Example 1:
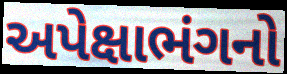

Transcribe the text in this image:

અપેક્ષાભંગનો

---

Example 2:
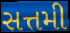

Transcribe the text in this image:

સત્તમી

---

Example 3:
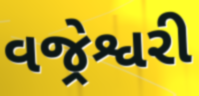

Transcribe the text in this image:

વજ્રેશ્વરી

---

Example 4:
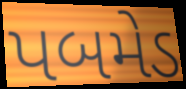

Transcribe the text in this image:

પબમેડ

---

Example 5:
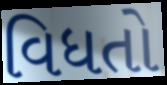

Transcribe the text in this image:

વિધતો